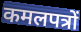
कमलपत्रों